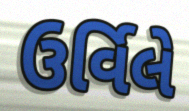
ઉર્વિલે